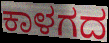
ಕಾಳಗದ